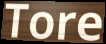
Tore